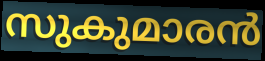
സുകുമാരൻ